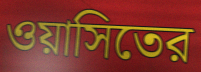
ওয়াসিতের